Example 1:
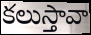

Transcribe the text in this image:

కలుస్తావా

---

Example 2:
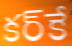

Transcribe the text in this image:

కర్‌కే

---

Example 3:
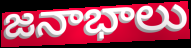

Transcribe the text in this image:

జనాభాలు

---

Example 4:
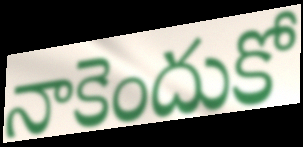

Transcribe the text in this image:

నాకెందుకో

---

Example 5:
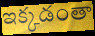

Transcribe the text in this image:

ఇక్కడంతా